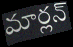
మార్లన్